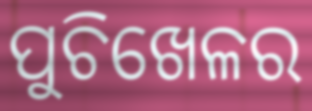
ପୁଚିଖେଳର